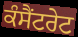
ਕੰਸੈਂਟਰੇਟ